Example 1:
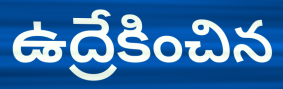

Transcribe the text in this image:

ఉద్రేకించిన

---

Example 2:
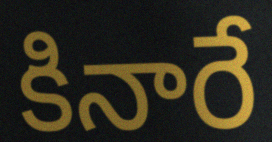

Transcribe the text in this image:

కినారే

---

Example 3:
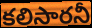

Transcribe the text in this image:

కలిసారనీ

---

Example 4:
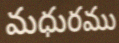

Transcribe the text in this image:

మధురము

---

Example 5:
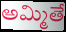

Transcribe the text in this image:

అమ్మితే